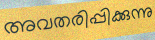
അവതരിപ്പിക്കുന്നു